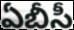
ఏబీసీ